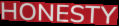
HONESTY